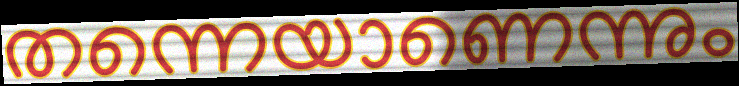
തന്നെയാണെന്നും